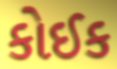
કોઈક